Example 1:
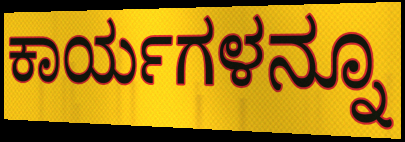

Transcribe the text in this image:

ಕಾರ್ಯಗಳನ್ನೂ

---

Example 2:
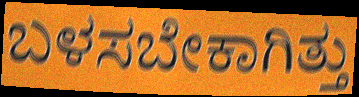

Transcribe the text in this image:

ಬಳಸಬೇಕಾಗಿತ್ತು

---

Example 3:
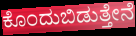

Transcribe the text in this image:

ಕೊಂದುಬಿಡುತ್ತೇನೆ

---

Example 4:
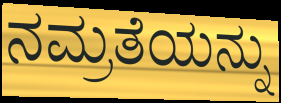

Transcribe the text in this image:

ನಮ್ರತೆಯನ್ನು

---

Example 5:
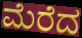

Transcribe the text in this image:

ಮೆರೆದ